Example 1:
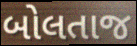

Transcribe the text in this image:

બોલતાજ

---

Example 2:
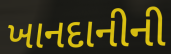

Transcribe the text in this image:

ખાનદાનીની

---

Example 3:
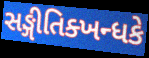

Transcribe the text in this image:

સઙ્ગીતિક્ખન્ધકે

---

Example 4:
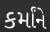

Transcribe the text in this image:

કર્માંને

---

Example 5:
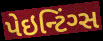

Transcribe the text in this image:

પેઇન્ટિંગ્સ